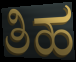
ತಿಹ